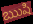
ఋషి